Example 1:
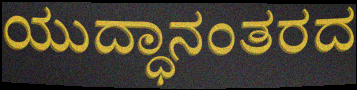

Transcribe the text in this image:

ಯುದ್ಧಾನಂತರದ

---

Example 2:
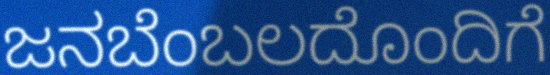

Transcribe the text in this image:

ಜನಬೆಂಬಲದೊಂದಿಗೆ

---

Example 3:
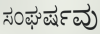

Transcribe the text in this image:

ಸಂಘರ್ಷವು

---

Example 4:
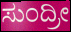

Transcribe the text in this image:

ಸುಂದ್ರೀ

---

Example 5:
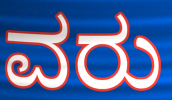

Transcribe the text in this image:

ವರು